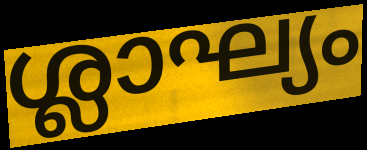
ശ്ലാഘ്യം